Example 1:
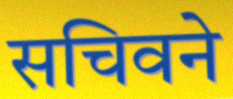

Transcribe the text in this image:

सचिवने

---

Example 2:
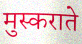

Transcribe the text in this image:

मुस्कराते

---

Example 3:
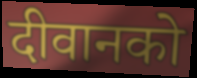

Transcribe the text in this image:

दीवानको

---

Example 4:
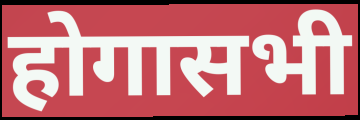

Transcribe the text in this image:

होगासभी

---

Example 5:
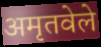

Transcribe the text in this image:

अमृतवेले